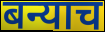
बन्याच